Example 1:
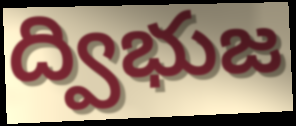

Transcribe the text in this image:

ద్విభుజ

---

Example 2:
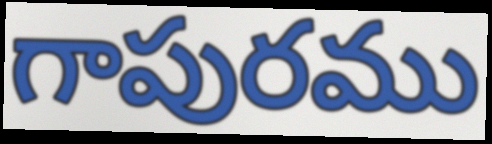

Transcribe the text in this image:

గాపురము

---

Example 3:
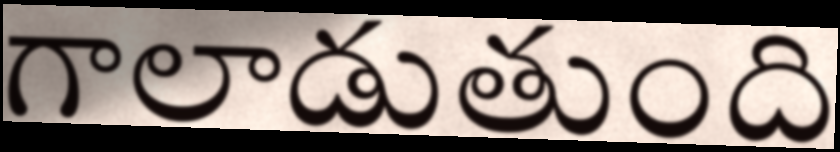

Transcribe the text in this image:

గాలాడుతుంది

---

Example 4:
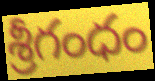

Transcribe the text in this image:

శ్రీగంధం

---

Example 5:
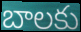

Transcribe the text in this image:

బాలకు